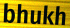
bhukh